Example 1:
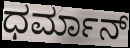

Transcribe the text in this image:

ಧರ್ಮಾನ್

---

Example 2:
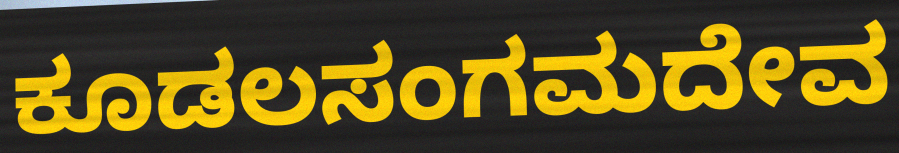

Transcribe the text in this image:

ಕೂಡಲಸಂಗಮದೇವ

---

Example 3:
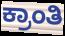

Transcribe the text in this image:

ಕ್ರಾಂತಿ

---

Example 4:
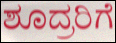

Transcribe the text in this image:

ಶೂದ್ರರಿಗೆ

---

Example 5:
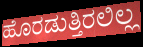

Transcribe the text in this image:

ಹೊರಡುತ್ತಿರಲಿಲ್ಲ